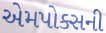
એમપોક્સની